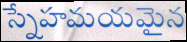
స్నేహమయమైన